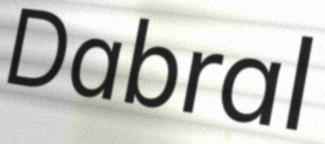
Dabral